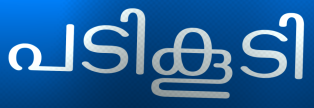
പടികൂടി